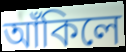
আঁকিলে